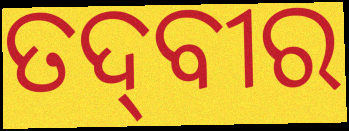
ତଦ୍‌ବୀର